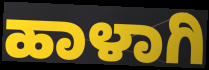
ಹಾಳಾಗಿ